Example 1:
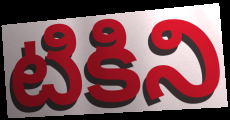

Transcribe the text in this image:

టికిని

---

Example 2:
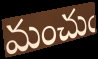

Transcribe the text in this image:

మంచుఁ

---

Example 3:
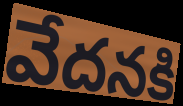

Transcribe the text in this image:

వేదనకి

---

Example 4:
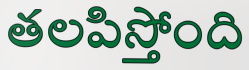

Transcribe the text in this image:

తలపిస్తోంది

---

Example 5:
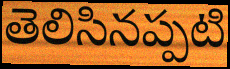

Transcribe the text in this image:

తెలిసినప్పటి